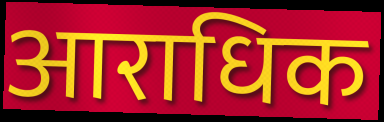
आराधिक